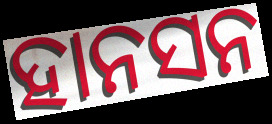
ହାନସନ